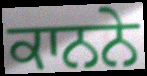
ਕਾਨਨੇ